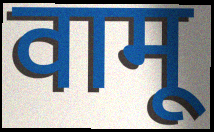
वामू